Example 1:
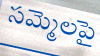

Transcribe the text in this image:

సమ్మెలపై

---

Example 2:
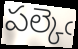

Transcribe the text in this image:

పల్కెఁ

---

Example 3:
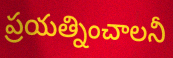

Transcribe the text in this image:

ప్రయత్నించాలనీ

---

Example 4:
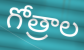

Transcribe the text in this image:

గోత్రాల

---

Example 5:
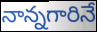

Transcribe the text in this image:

నాన్నగారినే